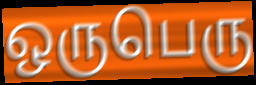
ஒருபெரு